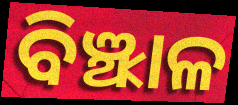
ବିଞ୍ଝାଳ